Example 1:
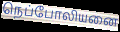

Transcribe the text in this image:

நெப்போலியனை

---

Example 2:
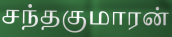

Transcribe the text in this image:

சந்தகுமாரன்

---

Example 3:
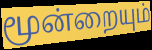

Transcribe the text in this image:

மூன்றையும்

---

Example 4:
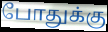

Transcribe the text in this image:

போதுக்கு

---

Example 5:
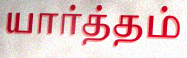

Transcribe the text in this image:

யார்த்தம்